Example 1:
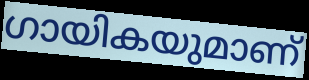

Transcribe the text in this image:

ഗായികയുമാണ്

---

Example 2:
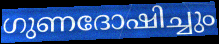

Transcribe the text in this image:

ഗുണദോഷിച്ചും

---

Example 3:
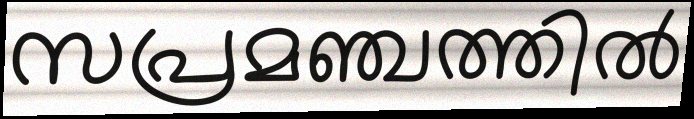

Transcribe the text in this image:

സപ്രമഞ്ചത്തിൽ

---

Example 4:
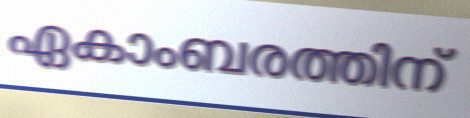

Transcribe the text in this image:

ഏകാംബരത്തിന്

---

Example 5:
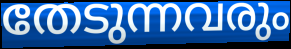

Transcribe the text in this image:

തേടുന്നവരും